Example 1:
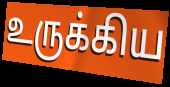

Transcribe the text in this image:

உருக்கிய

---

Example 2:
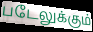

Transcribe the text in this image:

படேலுக்கும்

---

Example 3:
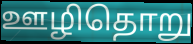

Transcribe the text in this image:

ஊழிதொறு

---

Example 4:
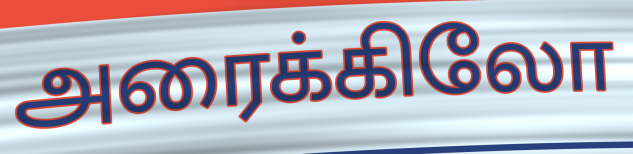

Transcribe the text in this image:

அரைக்கிலோ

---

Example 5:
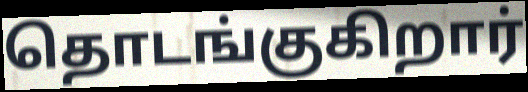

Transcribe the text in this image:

தொடங்குகிறார்